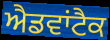
ਐਡਵਾਂਟੈਕ